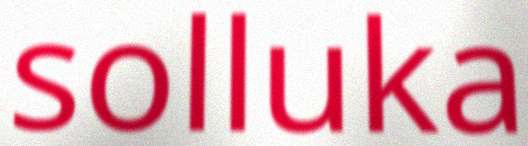
solluka